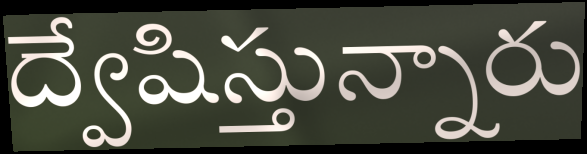
ద్వేషిస్తున్నారు